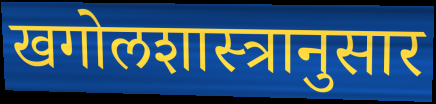
खगोलशास्त्रानुसार